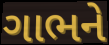
ગાભને